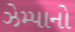
ઝેમ્પાનો